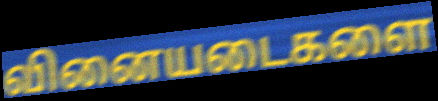
வினையடைகளை